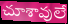
చూశావులే